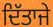
ਦਿੱਤਾਜੇ